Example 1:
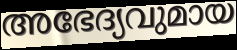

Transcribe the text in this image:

അഭേദ്യവുമായ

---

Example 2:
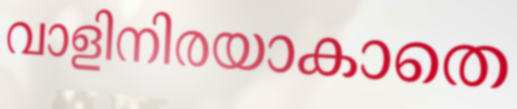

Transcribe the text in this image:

വാളിനിരയാകാതെ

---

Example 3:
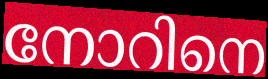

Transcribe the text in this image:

നോറിനെ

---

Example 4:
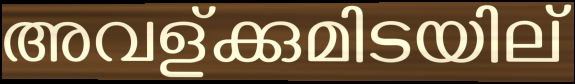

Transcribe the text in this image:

അവള്ക്കുമിടയില്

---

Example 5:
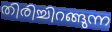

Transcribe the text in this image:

തിരിച്ചിറങ്ങുന്ന